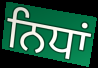
ਨਿਧਾਂ